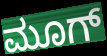
ಮೂಗ್